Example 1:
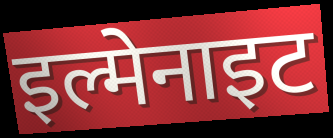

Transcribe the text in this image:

इल्मेनाइट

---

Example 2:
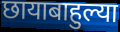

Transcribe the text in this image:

छायाबाहुल्या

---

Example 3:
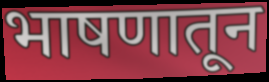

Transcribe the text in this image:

भाषणातून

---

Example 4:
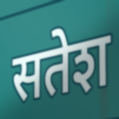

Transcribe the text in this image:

सतेश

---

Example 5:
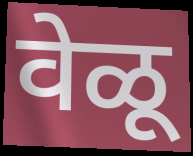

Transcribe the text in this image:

वेळू